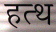
हत्थ